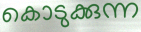
കൊടുക്കുന്ന